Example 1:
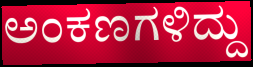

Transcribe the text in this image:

ಅಂಕಣಗಳಿದ್ದು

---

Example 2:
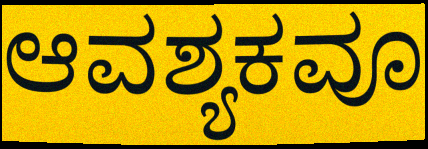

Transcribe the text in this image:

ಆವಶ್ಯಕವೂ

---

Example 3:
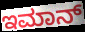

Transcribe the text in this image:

ಇಮಾನ್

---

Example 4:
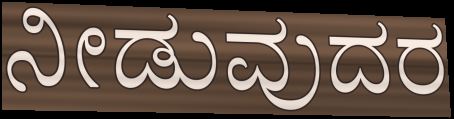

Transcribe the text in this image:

ನೀಡುವುದರ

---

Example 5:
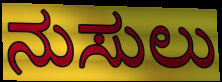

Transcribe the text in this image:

ನುಸುಲು